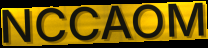
NCCAOM